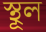
স্থূল